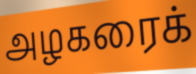
அழகரைக்